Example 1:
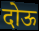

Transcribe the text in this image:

दोऊ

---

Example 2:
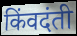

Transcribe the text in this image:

किंवदंती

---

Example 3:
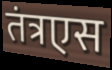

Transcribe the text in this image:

तंत्रएस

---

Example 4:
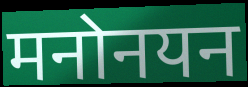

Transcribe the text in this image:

मनोनयन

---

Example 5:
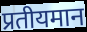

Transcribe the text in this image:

प्रतीयमान